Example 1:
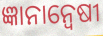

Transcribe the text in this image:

ଜ୍ଞାନାନ୍ୱେଷୀ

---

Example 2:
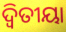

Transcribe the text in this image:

ଦ୍ଵିତୀୟା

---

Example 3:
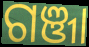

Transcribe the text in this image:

ଗଞ୍ଜା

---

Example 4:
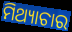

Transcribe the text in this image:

ମିଥ୍ୟାଚାର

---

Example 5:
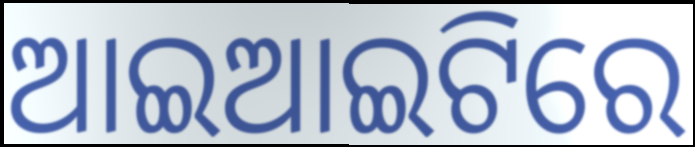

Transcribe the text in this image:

ଆଇଆଇଟିରେ